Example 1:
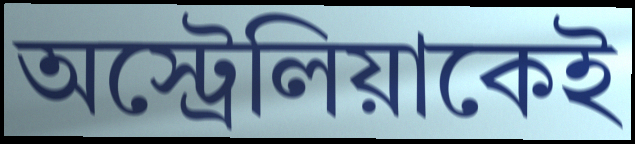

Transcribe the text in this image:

অস্ট্রেলিয়াকেই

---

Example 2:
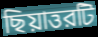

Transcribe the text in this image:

ছিয়াত্তরটি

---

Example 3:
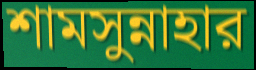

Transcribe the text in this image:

শামসুন্নাহার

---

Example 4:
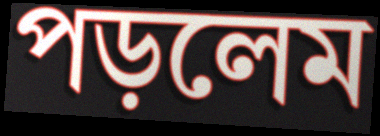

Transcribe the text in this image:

পড়লেম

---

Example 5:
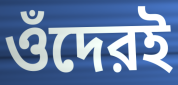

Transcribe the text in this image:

ওঁদেরই